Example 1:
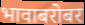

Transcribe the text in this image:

भावाबरोबर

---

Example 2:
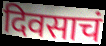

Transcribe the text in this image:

दिवसाचं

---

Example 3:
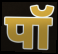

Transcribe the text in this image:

पॉ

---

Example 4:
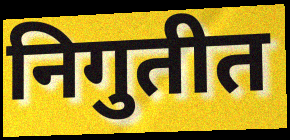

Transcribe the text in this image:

निगुतीत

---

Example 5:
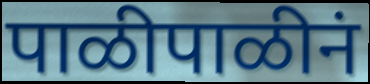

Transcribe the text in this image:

पाळीपाळीनं